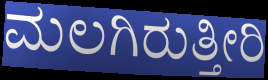
ಮಲಗಿರುತ್ತೀರಿ